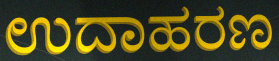
ಉದಾಹರಣ